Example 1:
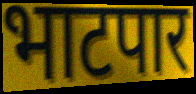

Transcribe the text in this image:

भाटपार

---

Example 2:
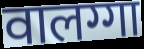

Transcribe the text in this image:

वालग्गा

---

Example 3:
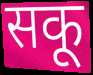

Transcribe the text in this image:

सकू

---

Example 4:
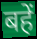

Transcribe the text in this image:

बहें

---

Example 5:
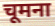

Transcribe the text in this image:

चूमना